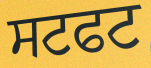
ਸਟਫਟ